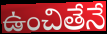
ఉంచితేనే